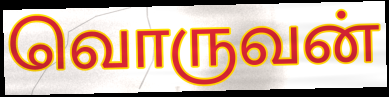
வொருவன்